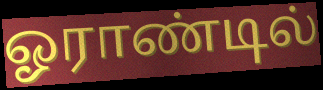
ஓராண்டில்